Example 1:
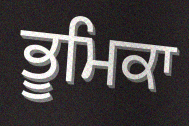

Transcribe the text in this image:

ਭੂਮਿਕਾ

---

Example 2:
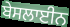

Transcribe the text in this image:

ਬੇਸਲਾਈਨ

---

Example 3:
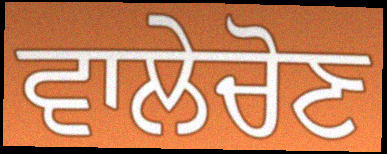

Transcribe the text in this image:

ਵਾਲੇਚੋਣ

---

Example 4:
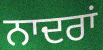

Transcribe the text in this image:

ਨਾਦਰਾਂ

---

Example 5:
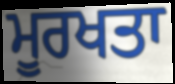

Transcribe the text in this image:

ਮੂਰਖਤਾ